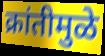
क्रांतीमुळे